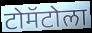
टोमॅटोला